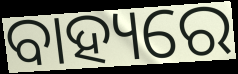
ବାହ୍ୟରେ